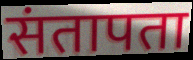
संतापता